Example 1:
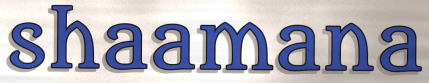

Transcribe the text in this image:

shaamana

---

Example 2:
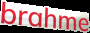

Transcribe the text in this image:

brahme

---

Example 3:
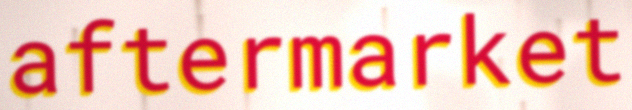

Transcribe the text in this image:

aftermarket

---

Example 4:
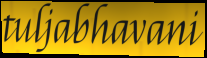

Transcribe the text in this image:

tuljabhavani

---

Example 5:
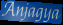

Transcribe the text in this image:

Anjagya